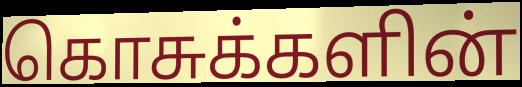
கொசுக்களின்